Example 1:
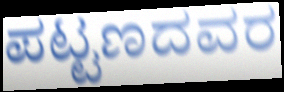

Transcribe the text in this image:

ಪಟ್ಟಣದವರ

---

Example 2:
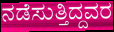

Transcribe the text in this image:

ನಡೆಸುತ್ತಿದ್ದವರ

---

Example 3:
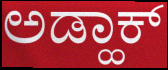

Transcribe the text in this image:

ಅಡ್ಹಾಕ್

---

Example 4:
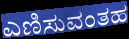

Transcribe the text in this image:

ಎಣಿಸುವಂತಹ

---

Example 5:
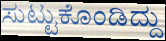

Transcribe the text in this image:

ಸುಟ್ಟುಕೊಂಡಿದ್ದು